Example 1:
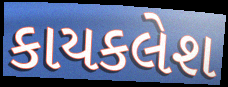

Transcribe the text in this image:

કાયકલેશ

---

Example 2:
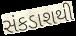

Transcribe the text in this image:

સંકડાશથી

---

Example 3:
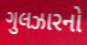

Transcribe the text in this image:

ગુલઝારનો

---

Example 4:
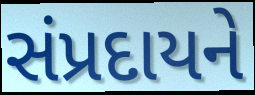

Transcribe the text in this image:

સંપ્રદાયને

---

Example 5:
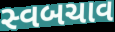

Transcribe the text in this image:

સ્વબચાવ